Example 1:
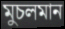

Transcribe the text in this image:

মুচলমান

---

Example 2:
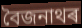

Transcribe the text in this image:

বৈজনাথৰ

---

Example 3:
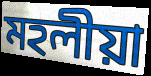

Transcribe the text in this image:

মহলীয়া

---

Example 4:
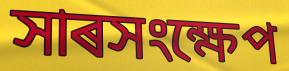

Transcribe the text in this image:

সাৰসংক্ষেপ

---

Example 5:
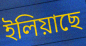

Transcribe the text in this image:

ইলিয়াছে